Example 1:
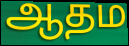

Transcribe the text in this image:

ஆதம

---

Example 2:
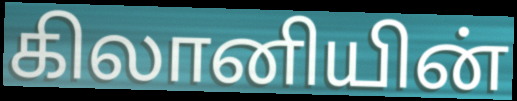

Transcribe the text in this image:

கிலானியின்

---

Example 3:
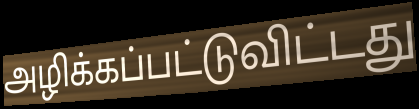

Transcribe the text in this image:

அழிக்கப்பட்டுவிட்டது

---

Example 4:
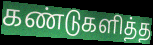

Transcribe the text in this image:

கண்டுகளித்த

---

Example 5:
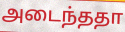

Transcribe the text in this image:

அடைந்ததா